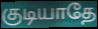
குடியாதே